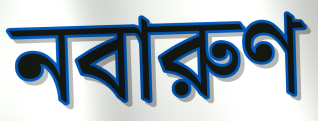
নবারুণ